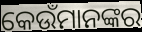
କେଉଁମାନଙ୍କର